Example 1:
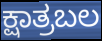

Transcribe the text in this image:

ಕ್ಷಾತ್ರಬಲ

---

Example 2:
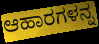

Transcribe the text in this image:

ಆಹಾರಗಳನ್ನ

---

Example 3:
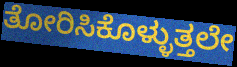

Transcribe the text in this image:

ತೋರಿಸಿಕೊಳ್ಳುತ್ತಲೇ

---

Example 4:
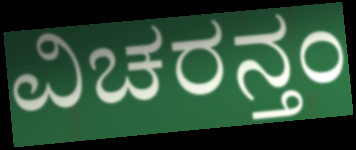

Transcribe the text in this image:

ವಿಚರನ್ತಂ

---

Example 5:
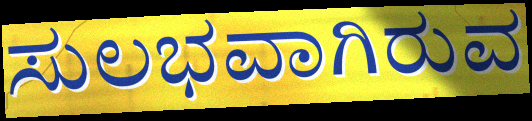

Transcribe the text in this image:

ಸುಲಭವಾಗಿರುವ